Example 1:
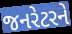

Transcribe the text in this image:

જનરેટરને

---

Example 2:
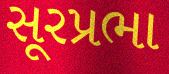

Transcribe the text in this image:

સૂરપ્રભા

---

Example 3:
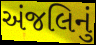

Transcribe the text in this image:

અંજલિનું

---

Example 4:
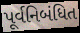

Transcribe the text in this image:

પૂર્વનિબંધિત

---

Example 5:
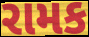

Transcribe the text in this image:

રામક